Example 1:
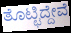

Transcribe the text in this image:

ತೊಟ್ಟಿದ್ದೇವೆ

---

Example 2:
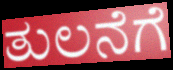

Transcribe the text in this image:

ತುಲನೆಗೆ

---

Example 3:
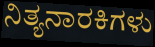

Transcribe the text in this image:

ನಿತ್ಯನಾರಕಿಗಳು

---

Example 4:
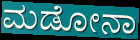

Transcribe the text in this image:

ಮಡೋನಾ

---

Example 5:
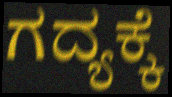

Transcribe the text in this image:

ಗದ್ಯಕ್ಕೆ